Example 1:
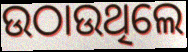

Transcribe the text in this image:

ଉଠାଉଥିଲେ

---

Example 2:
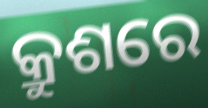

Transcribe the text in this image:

କ୍ରୁଶରେ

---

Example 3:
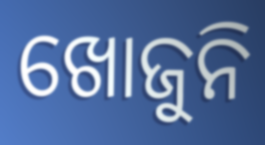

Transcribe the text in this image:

ଖୋଜୁନି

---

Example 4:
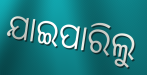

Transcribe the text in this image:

ଯାଇପାରିଲୁ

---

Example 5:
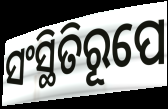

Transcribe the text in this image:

ସଂସ୍ଥିତିରୂପେ